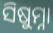
ସିଷୁମ୍ନା